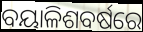
ବୟାଳିଶବର୍ଷରେ